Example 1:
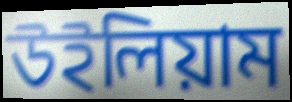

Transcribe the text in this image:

উইলিয়াম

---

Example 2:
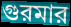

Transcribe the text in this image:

গুরমার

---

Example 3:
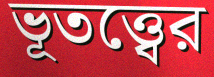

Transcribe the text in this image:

ভূতত্ত্বের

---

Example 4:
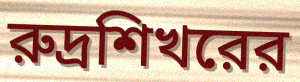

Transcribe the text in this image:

রুদ্রশিখরের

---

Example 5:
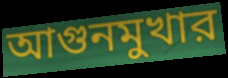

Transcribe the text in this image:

আগুনমুখার